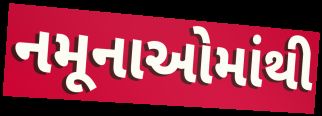
નમૂનાઓમાંથી